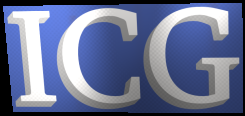
ICG